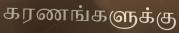
கரணங்களுக்கு